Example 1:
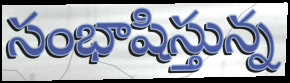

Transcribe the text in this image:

సంభాషిస్తున్న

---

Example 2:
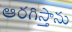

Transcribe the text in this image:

ఆరగిస్తాను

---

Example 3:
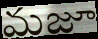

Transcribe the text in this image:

మజూ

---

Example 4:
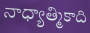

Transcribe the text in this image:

నాధ్యాత్మికాది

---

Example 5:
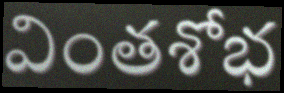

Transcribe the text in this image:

వింతశోభ